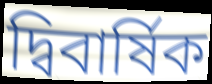
দ্বিবার্ষিক